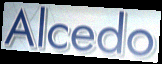
Alcedo